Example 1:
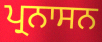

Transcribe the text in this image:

ਪ੍ਰਨਾਸਨ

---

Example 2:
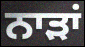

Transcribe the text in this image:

ਨਾੜਾਂ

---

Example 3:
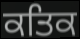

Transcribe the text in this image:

ਕਤਿਕ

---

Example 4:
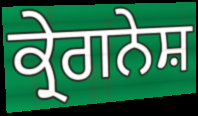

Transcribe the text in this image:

ਕ੍ਰੇਗਨੇਸ਼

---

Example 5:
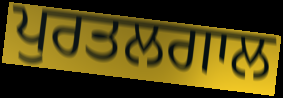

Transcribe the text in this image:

ਪੁਰਤਲਗਾਲ